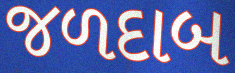
જળદાબ